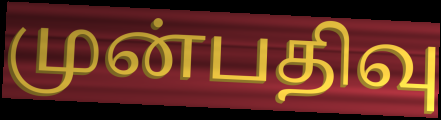
முன்பதிவு